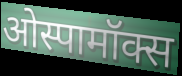
ओस्पामॉक्स